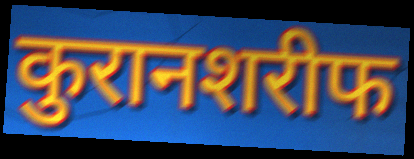
कुरानशरीफ